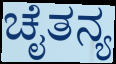
ಚೈತನ್ಯ